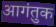
आगंतुक